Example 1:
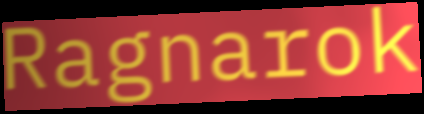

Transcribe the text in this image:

Ragnarok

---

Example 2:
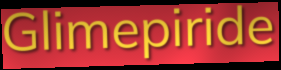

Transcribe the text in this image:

Glimepiride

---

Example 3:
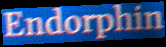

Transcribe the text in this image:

Endorphin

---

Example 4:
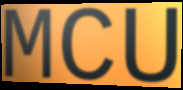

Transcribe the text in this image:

MCU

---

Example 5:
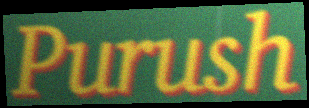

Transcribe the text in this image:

Purush